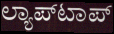
ಲ್ಯಾಪ್‌ಟಾಪ್